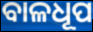
ବାଳଧୂପ